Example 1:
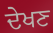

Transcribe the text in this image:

ਦੇਖਣ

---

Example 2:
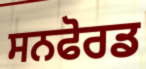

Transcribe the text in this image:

ਸਨਫੋਰਡ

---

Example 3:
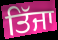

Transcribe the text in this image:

ਤਿੱਜਾ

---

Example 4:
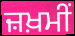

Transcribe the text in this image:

ਜ਼ਖ਼ਮੀਂ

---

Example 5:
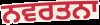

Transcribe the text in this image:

ਨਵਰਤਨਾ